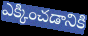
ఎక్కించడానికి